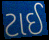
ટાઈ